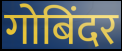
गोबिंदर